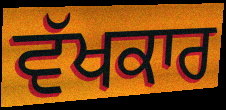
ਵੱਖਕਾਰ